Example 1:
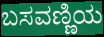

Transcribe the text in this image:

ಬಸವಣ್ಣಿಯ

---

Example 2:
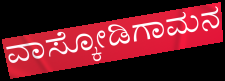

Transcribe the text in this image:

ವಾಸ್ಕೋಡಿಗಾಮನ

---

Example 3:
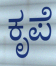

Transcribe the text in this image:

ಕೃಪೆ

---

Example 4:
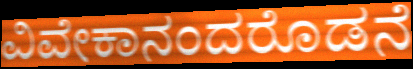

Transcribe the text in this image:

ವಿವೇಕಾನಂದರೊಡನೆ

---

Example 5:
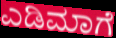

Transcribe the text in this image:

ಎಡಿಮಾಗೆ